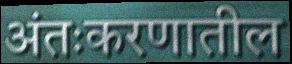
अंतःकरणातील